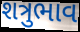
શત્રુભાવ